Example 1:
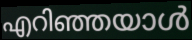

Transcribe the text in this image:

എറിഞ്ഞയാൾ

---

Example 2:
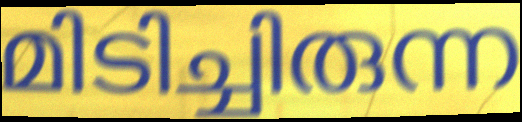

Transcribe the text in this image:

മിടിച്ചിരുന്ന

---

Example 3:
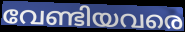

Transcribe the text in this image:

വേണ്ടിയവരെ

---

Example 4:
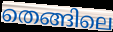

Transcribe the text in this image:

തെങ്ങിലെ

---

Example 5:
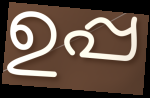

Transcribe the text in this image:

ഉപ്പ